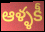
ఆళ్ళకీ